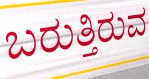
ಬರುತ್ತಿರುವ